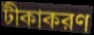
টীকাকরণ